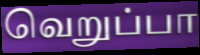
வெறுப்பா